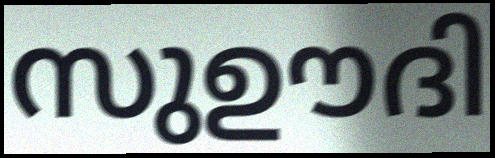
സുഊദി